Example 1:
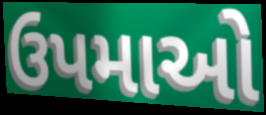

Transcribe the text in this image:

ઉપમાઓ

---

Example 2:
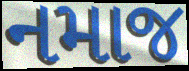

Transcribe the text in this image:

નમાજ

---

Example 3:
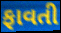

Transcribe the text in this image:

ફાવતી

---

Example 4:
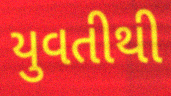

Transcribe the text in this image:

યુવતીથી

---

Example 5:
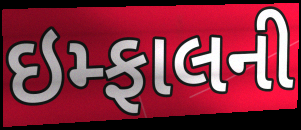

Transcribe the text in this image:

ઇમ્ફાલની